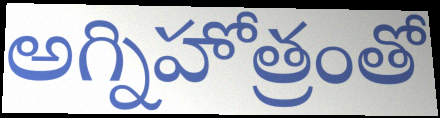
అగ్నిహోత్రంతో